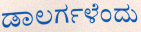
ಡಾಲರ್ಗಳೆಂದು